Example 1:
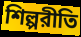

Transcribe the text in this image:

শিল্পরীতি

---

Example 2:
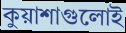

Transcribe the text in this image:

কুয়াশাগুলোই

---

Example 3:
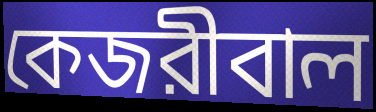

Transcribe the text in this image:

কেজরীবাল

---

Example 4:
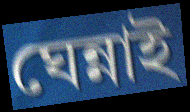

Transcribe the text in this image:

ঘেন্নাই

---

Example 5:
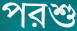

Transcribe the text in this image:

পরশু